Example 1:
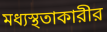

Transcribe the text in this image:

মধ্যস্থতাকারীর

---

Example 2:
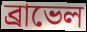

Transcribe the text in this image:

ব্রাভেল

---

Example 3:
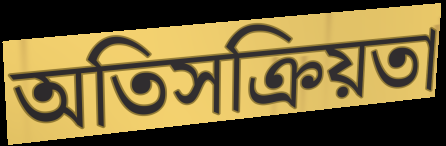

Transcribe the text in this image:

অতিসক্রিয়তা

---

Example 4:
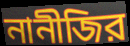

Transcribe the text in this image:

নানীজির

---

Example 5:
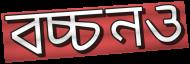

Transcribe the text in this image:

বচ্চনও